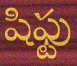
షిఫ్టు